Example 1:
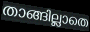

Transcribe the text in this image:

താങ്ങില്ലാതെ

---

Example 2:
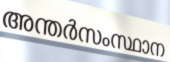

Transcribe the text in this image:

അന്തർസംസ്ഥാന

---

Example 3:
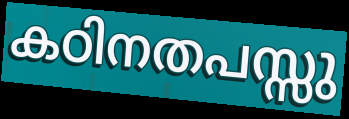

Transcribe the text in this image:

കഠിനതപസ്സു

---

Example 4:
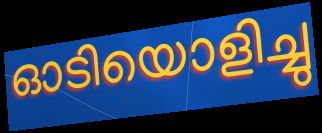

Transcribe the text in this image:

ഓടിയൊളിച്ചു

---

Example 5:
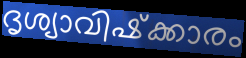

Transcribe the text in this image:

ദൃശ്യാവിഷ്‌ക്കാരം